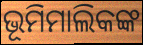
ଭୂମିମାଲିକଙ୍କ